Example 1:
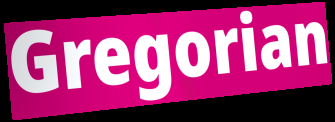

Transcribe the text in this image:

Gregorian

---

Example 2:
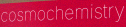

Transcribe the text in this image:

cosmochemistry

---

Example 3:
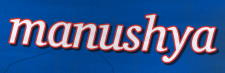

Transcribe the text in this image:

manushya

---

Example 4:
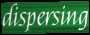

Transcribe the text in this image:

dispersing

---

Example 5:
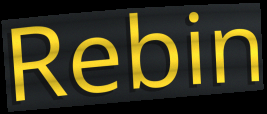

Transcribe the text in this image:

Rebin